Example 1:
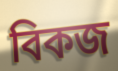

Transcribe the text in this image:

বিকজ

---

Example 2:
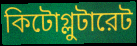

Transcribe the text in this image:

কিটোগ্লুটারেট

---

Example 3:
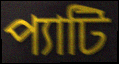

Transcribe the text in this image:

প্যাটি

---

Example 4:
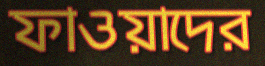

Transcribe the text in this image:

ফাওয়াদের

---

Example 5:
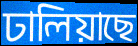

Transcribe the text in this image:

ঢালিয়াছে